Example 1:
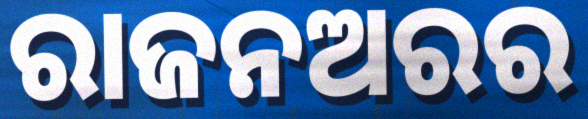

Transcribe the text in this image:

ରାଜନଅରର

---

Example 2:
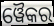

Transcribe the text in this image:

ୱୈକର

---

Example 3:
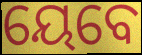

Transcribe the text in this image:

ୟେବେ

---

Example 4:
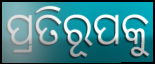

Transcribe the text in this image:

ପ୍ରତିରୂପକୁ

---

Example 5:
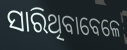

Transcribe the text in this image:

ସାରିଥିବାବେଳେ